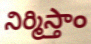
నిర్మిస్తాం